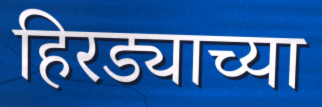
हिरड्याच्या